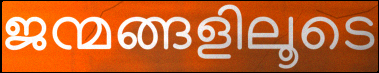
ജന്മങ്ങളിലൂടെ